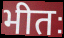
भीतः